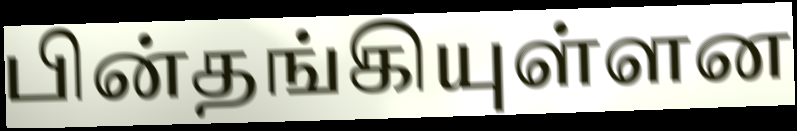
பின்தங்கியுள்ளன